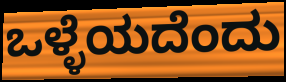
ಒಳ್ಳೆಯದೆಂದು